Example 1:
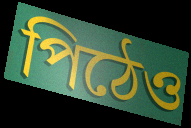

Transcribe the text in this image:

পিঠেও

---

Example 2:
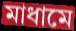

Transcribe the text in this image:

মাধামে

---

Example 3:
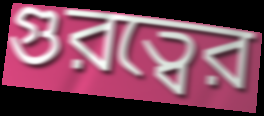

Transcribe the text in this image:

গুরত্বের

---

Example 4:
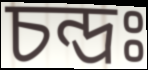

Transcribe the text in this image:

চন্দ্রঃ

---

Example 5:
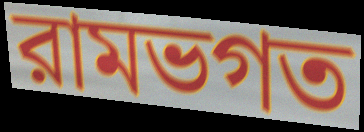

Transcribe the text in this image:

রামভগত